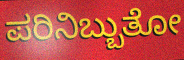
ಪರಿನಿಬ್ಬುತೋ